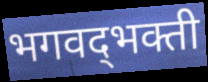
भगवद्‌भक्ती